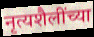
नृत्यशैलींच्या